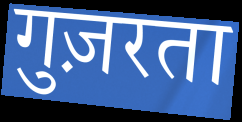
गुज़रता